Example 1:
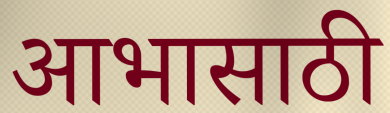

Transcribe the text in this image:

आभासाठी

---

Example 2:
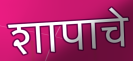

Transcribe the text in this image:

शापाचे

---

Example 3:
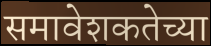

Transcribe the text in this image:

समावेशकतेच्या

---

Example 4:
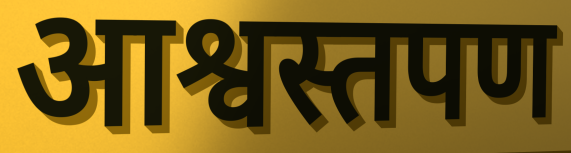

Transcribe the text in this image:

आश्वस्तपण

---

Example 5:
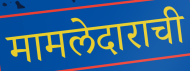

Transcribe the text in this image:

मामलेदाराची